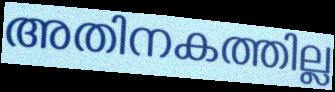
അതിനകത്തില്ല